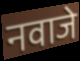
नवाजे